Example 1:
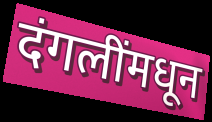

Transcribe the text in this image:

दंगलींमधून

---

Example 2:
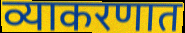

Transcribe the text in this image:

व्याकरणात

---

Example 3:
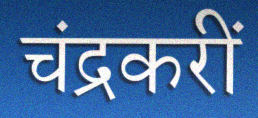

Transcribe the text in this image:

चंद्रकरीं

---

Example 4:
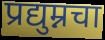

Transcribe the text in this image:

प्रद्युम्नचा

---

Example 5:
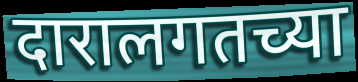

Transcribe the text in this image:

दारालगतच्या